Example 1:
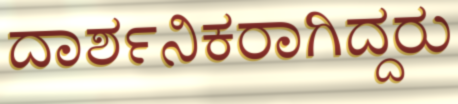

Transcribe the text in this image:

ದಾರ್ಶನಿಕರಾಗಿದ್ದರು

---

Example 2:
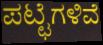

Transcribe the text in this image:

ಪಟ್ಟೆಗಳಿವೆ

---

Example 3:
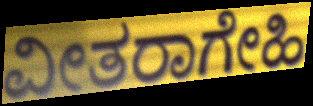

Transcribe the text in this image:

ವೀತರಾಗೇಹಿ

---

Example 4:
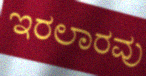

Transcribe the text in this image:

ಇರಲಾರವು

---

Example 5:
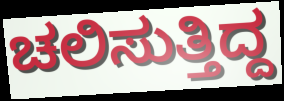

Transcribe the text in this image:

ಚಲಿಸುತ್ತಿದ್ದ